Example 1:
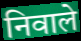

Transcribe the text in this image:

निवाले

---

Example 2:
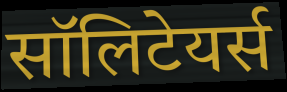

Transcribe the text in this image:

सॉलिटेयर्स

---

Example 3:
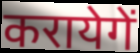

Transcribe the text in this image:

करायेगें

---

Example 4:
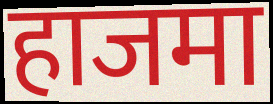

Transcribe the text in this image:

हाजमा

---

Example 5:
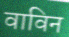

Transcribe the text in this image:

वाविन